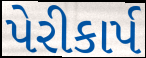
પેરીકાર્પ